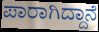
ಪಾರಾಗಿದ್ದಾನೆ